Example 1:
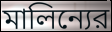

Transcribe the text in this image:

মালিন্যের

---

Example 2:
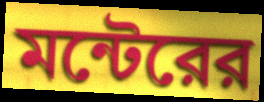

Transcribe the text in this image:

মন্টেরের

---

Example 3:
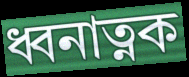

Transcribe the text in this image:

ধ্বনাত্নক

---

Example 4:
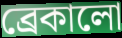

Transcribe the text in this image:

ব্রেকালো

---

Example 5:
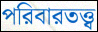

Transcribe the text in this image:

পরিবারতত্ত্ব